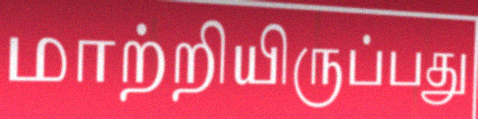
மாற்றியிருப்பது